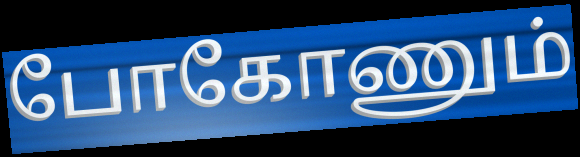
போகோணும்